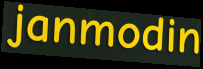
janmodin